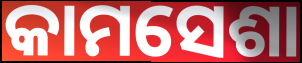
କାମସେଶା